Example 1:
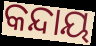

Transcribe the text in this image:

କନ୍ଦାୟ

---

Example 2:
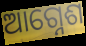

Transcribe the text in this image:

ଆଗ୍ନେଶ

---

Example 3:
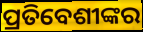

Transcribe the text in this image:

ପ୍ରତିବେଶୀଙ୍କର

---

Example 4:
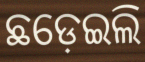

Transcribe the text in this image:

ଛଡ଼େଇଲି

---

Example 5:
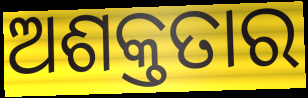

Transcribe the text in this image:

ଅଶକ୍ତତାର